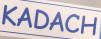
KADACH